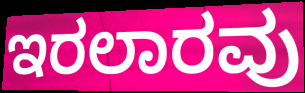
ಇರಲಾರವು